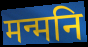
मन्मनि